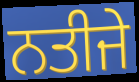
ਨਤੀਜੇ